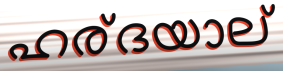
ഹര്ദയാല്